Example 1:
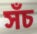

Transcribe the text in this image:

সঁচ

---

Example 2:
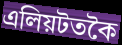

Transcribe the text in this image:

এলিয়টতকৈ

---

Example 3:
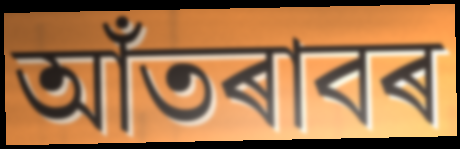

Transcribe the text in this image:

আঁতৰাবৰ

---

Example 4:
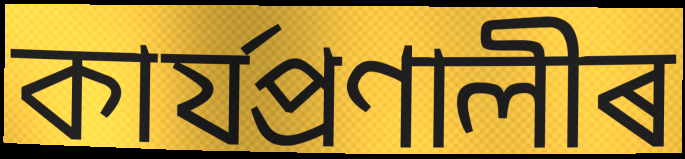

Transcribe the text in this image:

কাৰ্যপ্ৰণালীৰ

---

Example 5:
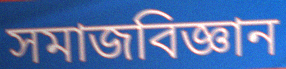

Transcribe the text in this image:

সমাজবিজ্ঞান